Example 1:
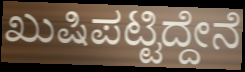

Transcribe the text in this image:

ಖುಷಿಪಟ್ಟಿದ್ದೇನೆ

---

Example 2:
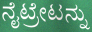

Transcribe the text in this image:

ನೈಟ್ರೇಟನ್ನು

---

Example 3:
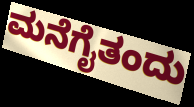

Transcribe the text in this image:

ಮನೆಗೈತಂದು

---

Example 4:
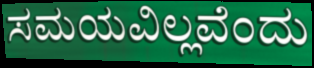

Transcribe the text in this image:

ಸಮಯವಿಲ್ಲವೆಂದು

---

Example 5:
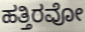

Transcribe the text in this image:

ಹತ್ತಿರವೋ